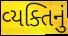
વ્‍યક્તિનું